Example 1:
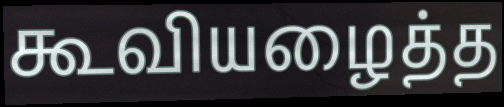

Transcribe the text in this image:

கூவியழைத்த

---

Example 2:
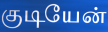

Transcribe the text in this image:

குடியேன்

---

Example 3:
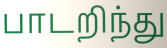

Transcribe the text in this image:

பாடறிந்து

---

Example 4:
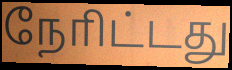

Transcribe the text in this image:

நேரிட்டது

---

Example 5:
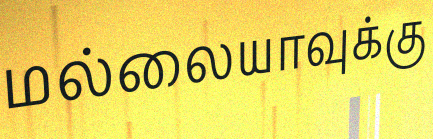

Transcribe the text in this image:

மல்லையாவுக்கு